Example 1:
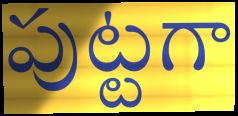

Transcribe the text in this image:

పుట్టగా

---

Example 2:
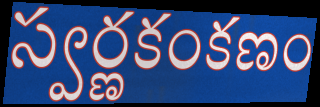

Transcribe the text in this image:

స్వర్ణకంకణం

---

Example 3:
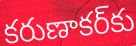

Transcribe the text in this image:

కరుణాకర్‌కు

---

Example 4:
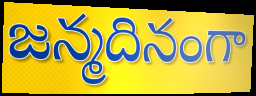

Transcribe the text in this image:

జన్మదినంగా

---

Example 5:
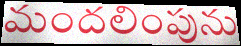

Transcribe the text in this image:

మందలింపును